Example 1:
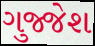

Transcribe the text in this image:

ગુજ્જેશ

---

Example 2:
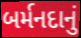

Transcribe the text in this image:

બર્મનદાનું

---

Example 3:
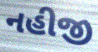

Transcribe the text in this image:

નહીજી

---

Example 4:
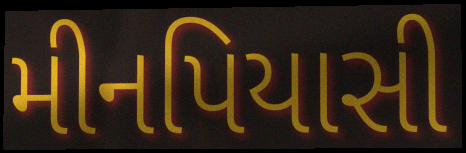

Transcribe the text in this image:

મીનપિયાસી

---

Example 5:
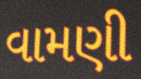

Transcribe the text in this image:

વામણી